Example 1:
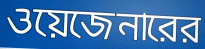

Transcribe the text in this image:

ওয়েজেনারের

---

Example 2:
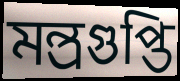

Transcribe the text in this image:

মন্ত্রগুপ্তি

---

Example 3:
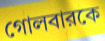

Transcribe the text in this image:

গোলবারকে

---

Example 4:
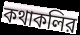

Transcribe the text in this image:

কথাকলির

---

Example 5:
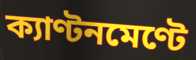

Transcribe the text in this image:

ক্যাণ্টনমেণ্টে